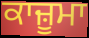
ਕਾਜ਼ੂਮਾ